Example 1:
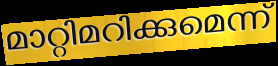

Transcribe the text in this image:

മാറ്റിമറിക്കുമെന്ന്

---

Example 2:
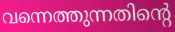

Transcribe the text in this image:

വന്നെത്തുന്നതിന്റെ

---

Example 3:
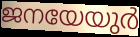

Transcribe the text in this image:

ജനയേയുർ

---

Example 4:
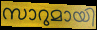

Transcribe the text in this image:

സാറുമായി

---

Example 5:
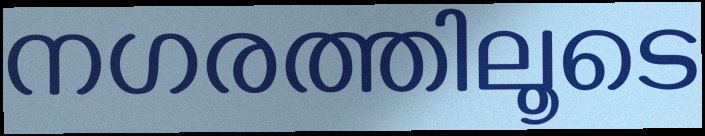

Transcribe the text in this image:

നഗരത്തിലൂടെ